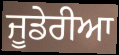
ਜੂਡੇਰੀਆ